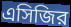
এসিজির